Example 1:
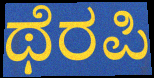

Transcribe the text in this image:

ಥೆರಪಿ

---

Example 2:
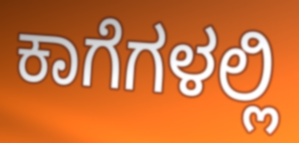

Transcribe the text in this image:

ಕಾಗೆಗಳಲ್ಲಿ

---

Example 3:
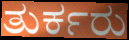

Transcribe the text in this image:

ತುರ್ಕರು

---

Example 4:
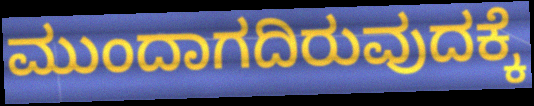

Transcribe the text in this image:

ಮುಂದಾಗದಿರುವುದಕ್ಕೆ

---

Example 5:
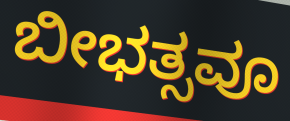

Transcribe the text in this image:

ಬೀಭತ್ಸವೂ